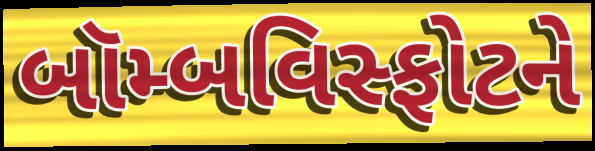
બૉમ્બવિસ્ફોટને